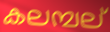
കലമ്പല്